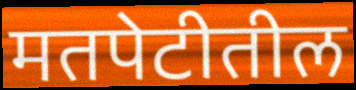
मतपेटीतील